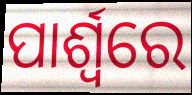
ପାର୍ଶ୍ୱରେ